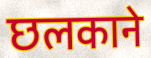
छलकाने